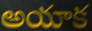
అయాక